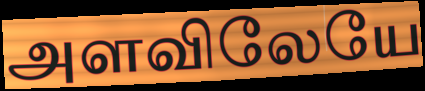
அளவிலேயே